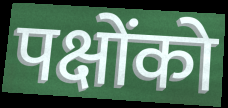
पक्षोंको